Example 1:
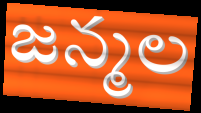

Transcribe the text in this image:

జన్మల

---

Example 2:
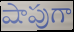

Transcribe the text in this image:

షాపుగా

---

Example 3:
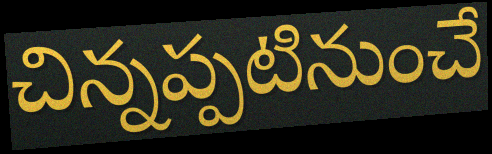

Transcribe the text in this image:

చిన్నప్పటినుంచే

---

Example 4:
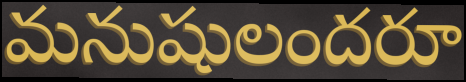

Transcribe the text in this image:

మనుషులందరూ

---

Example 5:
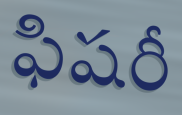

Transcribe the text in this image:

ఫిషరీ